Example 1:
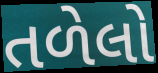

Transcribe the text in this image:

તળેલો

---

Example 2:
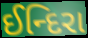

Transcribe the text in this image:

ઈન્દિરા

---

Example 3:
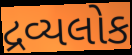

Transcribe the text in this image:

દ્રવ્યલોક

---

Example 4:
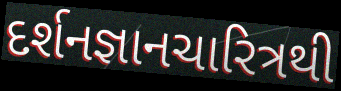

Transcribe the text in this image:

દર્શનજ્ઞાનચારિત્રથી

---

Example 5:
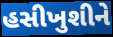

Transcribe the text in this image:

હસીખુશીને